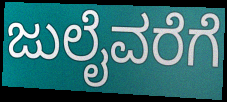
ಜುಲೈವರೆಗೆ